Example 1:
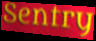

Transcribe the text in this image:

Sentry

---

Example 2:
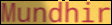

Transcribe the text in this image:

Mundhir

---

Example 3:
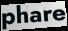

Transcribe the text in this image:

phare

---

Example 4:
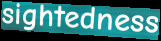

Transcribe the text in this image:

sightedness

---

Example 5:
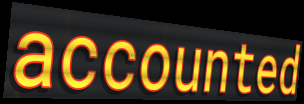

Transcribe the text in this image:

accounted